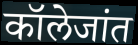
कॉलेजांत